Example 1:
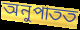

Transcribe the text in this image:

অনুপাতত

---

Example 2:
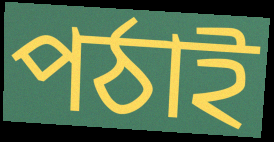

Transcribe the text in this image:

পঠাই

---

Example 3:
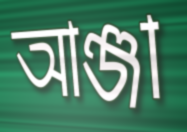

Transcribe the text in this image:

আঞ্জা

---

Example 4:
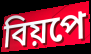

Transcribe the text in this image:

বিয়পে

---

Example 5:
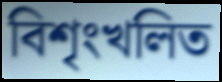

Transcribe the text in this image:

বিশৃংখলিত